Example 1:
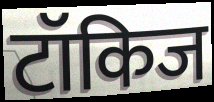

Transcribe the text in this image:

टॉकिज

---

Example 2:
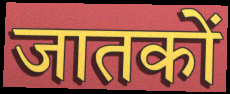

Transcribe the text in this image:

जातकों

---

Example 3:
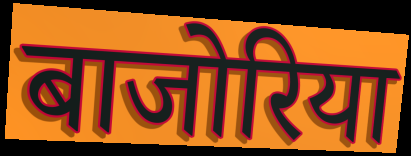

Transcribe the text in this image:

बाजोरिया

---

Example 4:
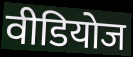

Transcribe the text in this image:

वीडियोज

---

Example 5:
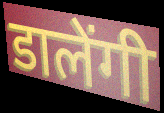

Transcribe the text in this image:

डालेंगी